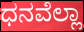
ಧನವೆಲ್ಲಾ